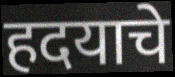
हदयाचे